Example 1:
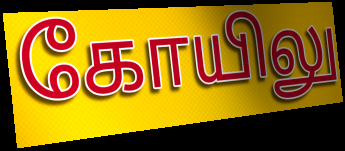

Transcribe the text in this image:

கோயிலு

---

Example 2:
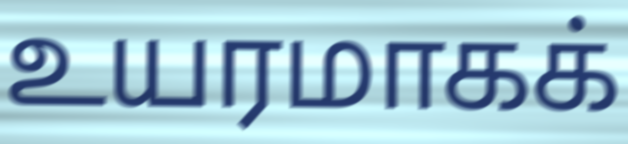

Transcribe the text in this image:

உயரமாகக்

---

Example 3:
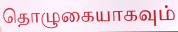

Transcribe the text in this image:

தொழுகையாகவும்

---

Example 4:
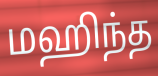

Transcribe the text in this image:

மஹிந்த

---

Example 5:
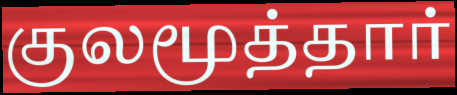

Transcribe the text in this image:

குலமூத்தார்